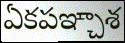
ఏకపఞ్చాశ